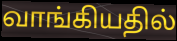
வாங்கியதில்